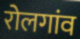
रोलगांव